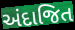
અંદાજિત